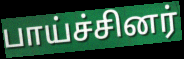
பாய்ச்சினர்